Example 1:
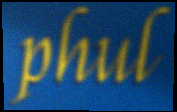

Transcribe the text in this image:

phul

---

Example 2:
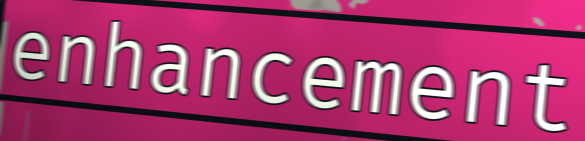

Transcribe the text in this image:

enhancement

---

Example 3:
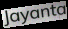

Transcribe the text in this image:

Jayanta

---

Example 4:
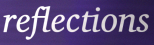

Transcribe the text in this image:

reflections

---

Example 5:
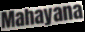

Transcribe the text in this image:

Mahayana